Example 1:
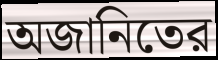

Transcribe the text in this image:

অজানিতের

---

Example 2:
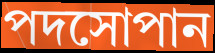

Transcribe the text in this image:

পদসোপান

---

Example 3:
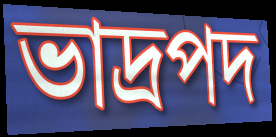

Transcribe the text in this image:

ভাদ্রপদ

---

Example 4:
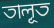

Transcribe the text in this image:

তালূত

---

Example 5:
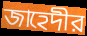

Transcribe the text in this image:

জাহেদীর